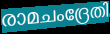
രാമചംദ്രേതി